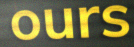
ours